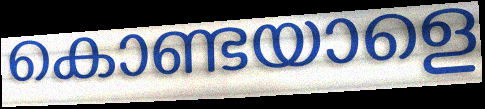
കൊണ്ടയാളെ